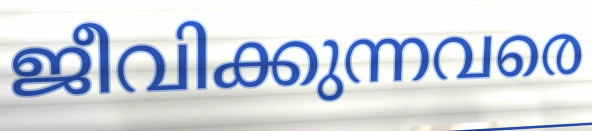
ജീവിക്കുന്നവരെ